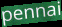
pennai